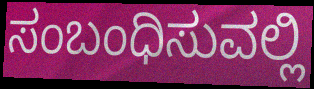
ಸಂಬಂಧಿಸುವಲ್ಲಿ